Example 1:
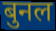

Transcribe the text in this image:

बुनल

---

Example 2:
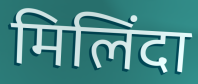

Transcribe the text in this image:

मिलिंदा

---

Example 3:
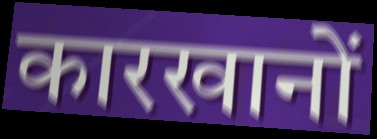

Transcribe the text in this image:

कारखानों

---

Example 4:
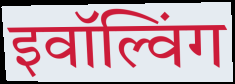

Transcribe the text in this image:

इवॉल्विंग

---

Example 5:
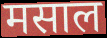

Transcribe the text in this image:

मसाल